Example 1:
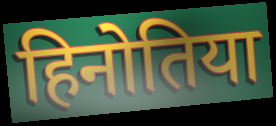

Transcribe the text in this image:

हिनोतिया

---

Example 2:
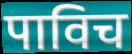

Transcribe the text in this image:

पाविच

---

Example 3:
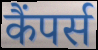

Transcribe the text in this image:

कैंपर्स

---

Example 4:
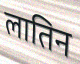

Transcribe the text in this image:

लातिन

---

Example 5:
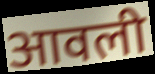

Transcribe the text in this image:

आवली